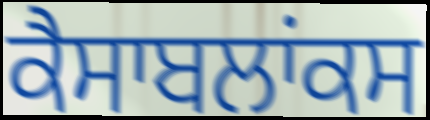
ਕੈਸਾਬਲਾਂਕਸ